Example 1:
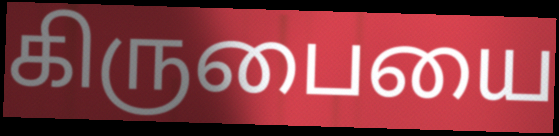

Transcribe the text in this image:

கிருபையை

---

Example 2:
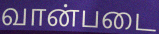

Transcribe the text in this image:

வான்படை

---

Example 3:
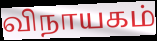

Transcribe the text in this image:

விநாயகம்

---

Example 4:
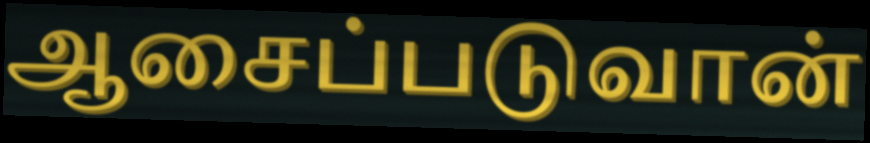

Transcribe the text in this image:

ஆசைப்படுவான்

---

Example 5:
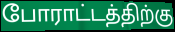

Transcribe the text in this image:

போராட்டத்திற்கு